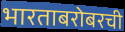
भारताबरोबरची